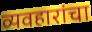
व्यवहारांचा